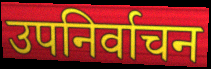
उपनिर्वाचन